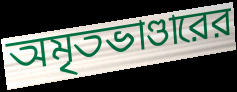
অমৃতভাণ্ডারের